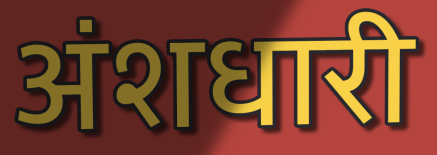
अंशधारी